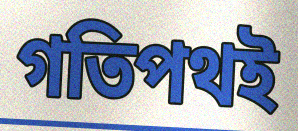
গতিপথই